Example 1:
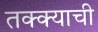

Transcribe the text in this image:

तक्क्याची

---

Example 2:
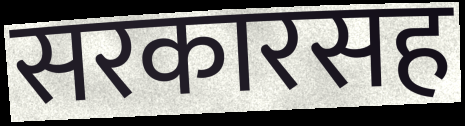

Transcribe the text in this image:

सरकारसह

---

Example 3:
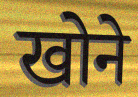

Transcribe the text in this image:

खोने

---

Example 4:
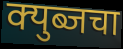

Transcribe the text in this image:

क्युब्जचा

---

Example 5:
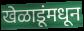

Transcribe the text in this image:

खेळाडूंमधून